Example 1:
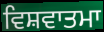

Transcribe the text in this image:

ਵਿਸ਼ਵਾਤਮਾ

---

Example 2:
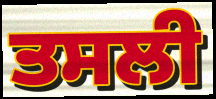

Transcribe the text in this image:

ਤਸਲੀ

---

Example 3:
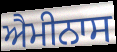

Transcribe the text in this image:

ਐਮੀਨਾਸ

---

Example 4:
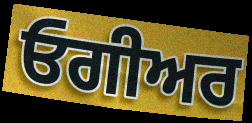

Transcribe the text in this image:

ਓਗੀਅਰ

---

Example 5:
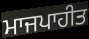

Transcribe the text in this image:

ਮਾਜਪਾਹੀਤ